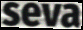
seva